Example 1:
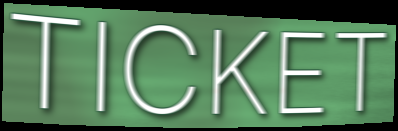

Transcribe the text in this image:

TICKET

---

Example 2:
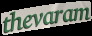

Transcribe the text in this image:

thevaram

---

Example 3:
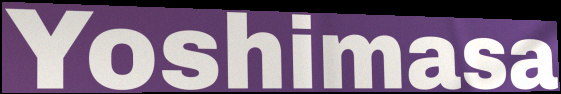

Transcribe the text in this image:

Yoshimasa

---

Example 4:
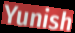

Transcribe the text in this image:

Yunish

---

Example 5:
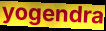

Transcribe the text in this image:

yogendra